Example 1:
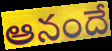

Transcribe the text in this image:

ఆనందే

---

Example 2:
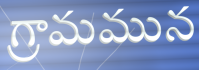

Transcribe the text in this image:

గ్రామమున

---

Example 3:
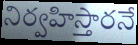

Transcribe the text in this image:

నిర్వహిస్తారనే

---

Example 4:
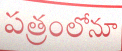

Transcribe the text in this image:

పత్రంలోనూ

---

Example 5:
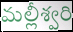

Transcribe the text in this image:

మల్లీశ్వరి